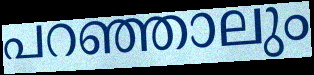
പറഞ്ഞാലും